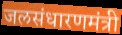
जलसंधारणमंत्री